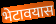
भेटावयास